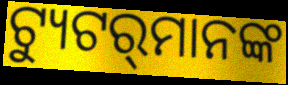
ଟ୍ୟୁଟର୍‍ମାନଙ୍କ